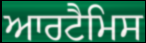
ਆਰਟੈਮਿਸ